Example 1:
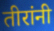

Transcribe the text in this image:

तीरांनी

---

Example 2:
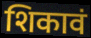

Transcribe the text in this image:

शिकावं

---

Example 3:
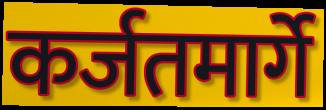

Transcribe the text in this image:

कर्जतमार्गे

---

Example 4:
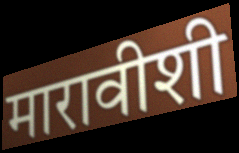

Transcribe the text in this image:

मारावीशी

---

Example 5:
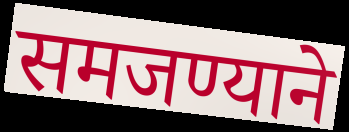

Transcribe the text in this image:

समजण्याने